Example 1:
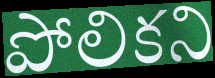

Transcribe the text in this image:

పోలికని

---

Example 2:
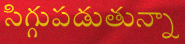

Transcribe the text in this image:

సిగ్గుపడుతున్నా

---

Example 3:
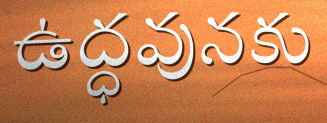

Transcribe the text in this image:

ఉద్ధవునకు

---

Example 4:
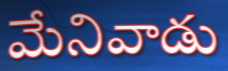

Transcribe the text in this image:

మేనివాడు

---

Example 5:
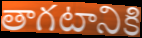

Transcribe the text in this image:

తాగటానికి